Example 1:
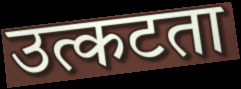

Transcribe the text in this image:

उत्कटता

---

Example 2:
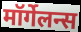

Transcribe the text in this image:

मॉर्गेलन्स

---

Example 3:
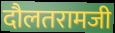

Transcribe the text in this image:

दौलतरामजी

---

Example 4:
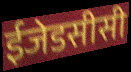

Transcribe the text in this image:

ईजेडसीसी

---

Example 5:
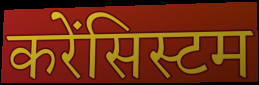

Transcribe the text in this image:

करेंसिस्टम